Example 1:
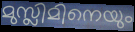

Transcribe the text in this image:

മുസ്ലിമിനെയും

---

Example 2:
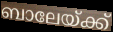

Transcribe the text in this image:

ബാലേയ്ക്ക്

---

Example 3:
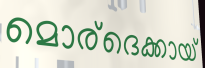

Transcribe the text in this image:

മൊര്ദെക്കായ്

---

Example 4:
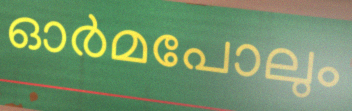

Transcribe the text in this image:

ഓർമപോലും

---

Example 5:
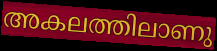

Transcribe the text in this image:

അകലത്തിലാണു